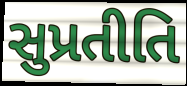
સુપ્રતીતિ